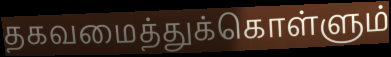
தகவமைத்துக்கொள்ளும்